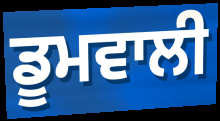
ਡੂਮਵਾਲੀ